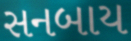
સનબાય